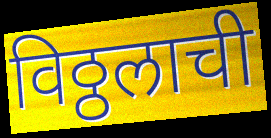
विठ्ठलाची